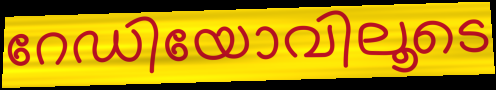
റേഡിയോവിലൂടെ